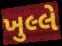
ખુલ્લે